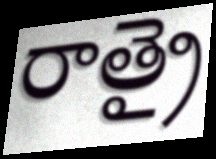
రాత్రై